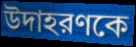
উদাহরণকে